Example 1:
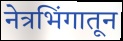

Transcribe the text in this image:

नेत्रभिंगातून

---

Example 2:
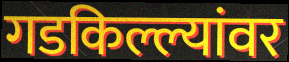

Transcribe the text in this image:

गडकिल्ल्यांवर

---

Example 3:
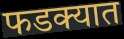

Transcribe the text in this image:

फडक्‍यात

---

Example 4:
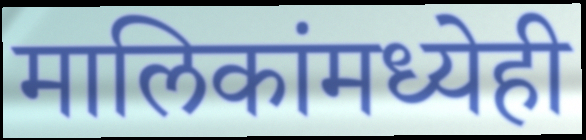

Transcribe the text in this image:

मालिकांमध्येही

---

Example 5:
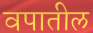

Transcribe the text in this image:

वपातील